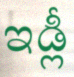
ఇడ్లీ